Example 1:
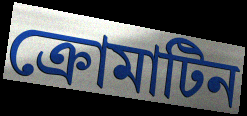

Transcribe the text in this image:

ক্রোমাটিন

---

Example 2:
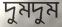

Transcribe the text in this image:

দুমদুম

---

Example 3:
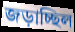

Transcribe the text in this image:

জড়াচ্ছিল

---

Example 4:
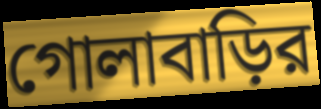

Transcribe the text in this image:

গোলাবাড়ির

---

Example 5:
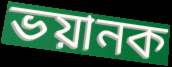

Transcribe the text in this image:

ভয়ানক